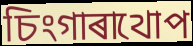
চিংগাৰাথোপ